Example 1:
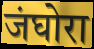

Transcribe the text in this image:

जंघोरा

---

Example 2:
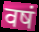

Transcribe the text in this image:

वषं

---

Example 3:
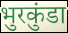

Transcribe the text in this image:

भुरकुंडा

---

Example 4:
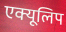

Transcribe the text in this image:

एक्यूलिप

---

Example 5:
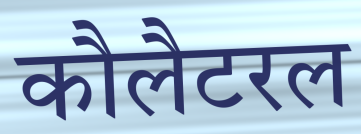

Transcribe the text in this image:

कौलैटरल